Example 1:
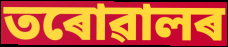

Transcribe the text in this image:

তৰোৱালৰ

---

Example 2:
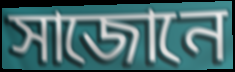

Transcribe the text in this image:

সাজোনে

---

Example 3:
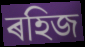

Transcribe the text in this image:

ৰহিজ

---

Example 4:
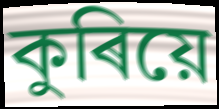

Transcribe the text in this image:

কুৰিয়ে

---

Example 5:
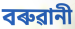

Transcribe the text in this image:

বৰুৱানী